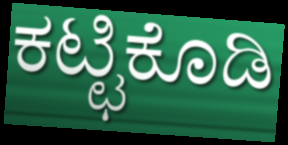
ಕಟ್ಟಿಕೊಡಿ